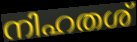
നിഹതശ്